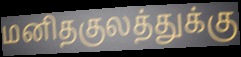
மனிதகுலத்துக்கு